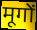
मूगों